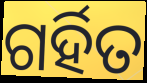
ଗର୍ହିତ